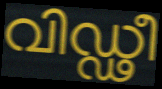
വിഡ്ഢീ